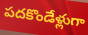
పదకొండేళ్లుగా